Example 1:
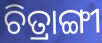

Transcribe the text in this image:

ଚିତ୍ରାଙ୍ଗୀ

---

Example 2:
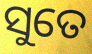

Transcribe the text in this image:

ସୁତେ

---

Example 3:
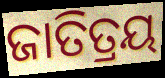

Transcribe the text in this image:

ଜାତିତ୍ରୟ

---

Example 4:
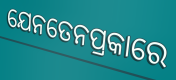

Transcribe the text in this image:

ଯେନତେନପ୍ରକାରେ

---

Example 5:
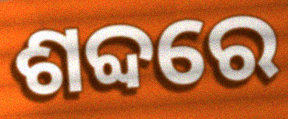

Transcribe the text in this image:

ଶବ୍ଦରେ